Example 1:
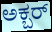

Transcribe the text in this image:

ಅಕ್ಬರ್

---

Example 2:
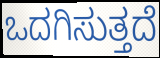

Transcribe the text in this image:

ಒದಗಿಸುತ್ತದೆ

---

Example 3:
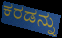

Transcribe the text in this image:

ಕರಡನ್ನು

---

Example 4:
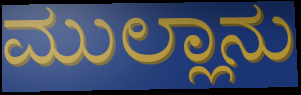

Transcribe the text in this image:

ಮುಲ್ಲಾನು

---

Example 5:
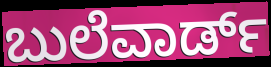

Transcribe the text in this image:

ಬುಲೆವಾರ್ಡ್